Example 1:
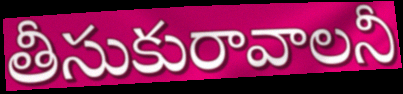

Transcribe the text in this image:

తీసుకురావాలనీ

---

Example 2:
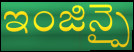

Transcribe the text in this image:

ఇంజిన్పై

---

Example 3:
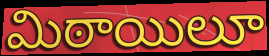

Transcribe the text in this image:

మిఠాయిలూ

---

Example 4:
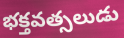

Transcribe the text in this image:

భక్తవత్సలుడు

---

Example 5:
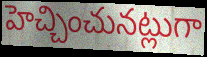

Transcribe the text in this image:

హెచ్చించునట్లుగా